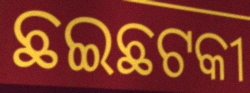
ଛଇଛଟକୀ